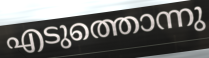
എടുത്തൊന്നു